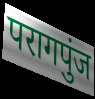
परागपुंज